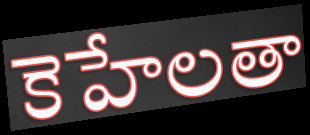
కెహేలతా